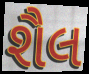
શૈલ